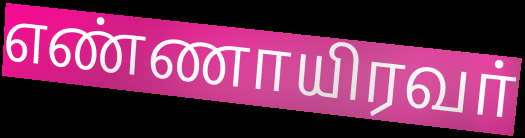
எண்ணாயிரவர்